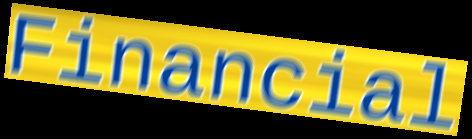
Financial